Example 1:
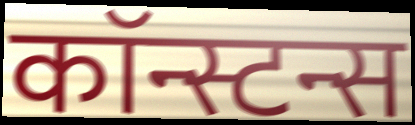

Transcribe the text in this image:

कॉन्स्टन्स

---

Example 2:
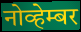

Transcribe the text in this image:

नोव्हेम्बर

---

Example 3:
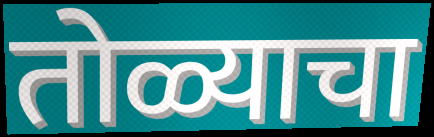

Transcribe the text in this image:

तोळ्याचा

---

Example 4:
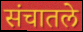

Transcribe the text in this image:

संचातले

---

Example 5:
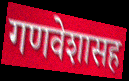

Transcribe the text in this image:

गणवेशासह